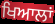
ਖਿਆਲਾਂ